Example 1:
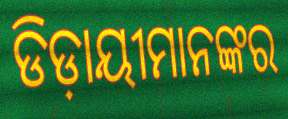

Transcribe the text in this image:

ଡିଡ଼ାୟୀମାନଙ୍କର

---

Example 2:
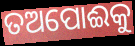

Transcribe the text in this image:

ତଅପୋଈକୁ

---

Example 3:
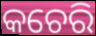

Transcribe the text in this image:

କଚେରି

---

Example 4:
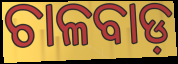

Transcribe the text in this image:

ଚାଳବାଡ଼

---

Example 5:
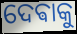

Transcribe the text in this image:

ଦେଵାକୁ